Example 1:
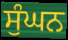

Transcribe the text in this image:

ਸੁੰਘਨ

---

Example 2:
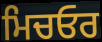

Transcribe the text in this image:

ਮਿਚਓਰ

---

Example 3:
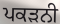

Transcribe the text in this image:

ਪਕੜਨੀ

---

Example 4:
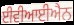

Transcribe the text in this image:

ਈਵੀਆਈਐਨ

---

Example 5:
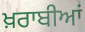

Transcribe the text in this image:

ਖ਼ਰਾਬੀਆਂ